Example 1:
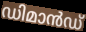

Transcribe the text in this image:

ഡിമാൻഡ്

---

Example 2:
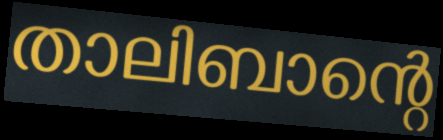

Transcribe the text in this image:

താലിബാന്റെ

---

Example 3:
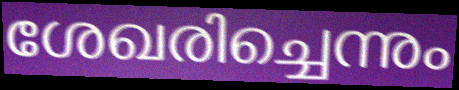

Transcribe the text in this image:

ശേഖരിച്ചെന്നും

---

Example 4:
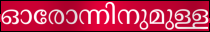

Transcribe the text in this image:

ഓരോന്നിനുമുള്ള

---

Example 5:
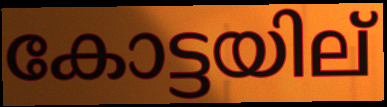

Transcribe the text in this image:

കോട്ടയില്